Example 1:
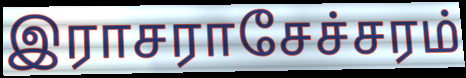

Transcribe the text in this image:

இராசராசேச்சரம்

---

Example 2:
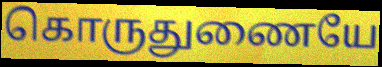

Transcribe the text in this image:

கொருதுணையே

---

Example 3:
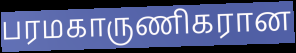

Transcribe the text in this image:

பரமகாருணிகரான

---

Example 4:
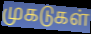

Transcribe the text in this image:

முகடுகள்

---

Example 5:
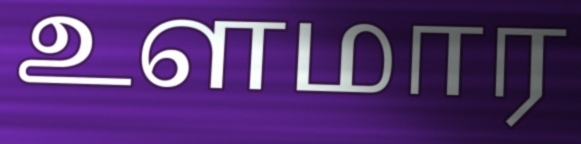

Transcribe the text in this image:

உளமார